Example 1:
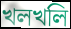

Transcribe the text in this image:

খলখলি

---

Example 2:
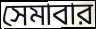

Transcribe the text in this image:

সেমাবার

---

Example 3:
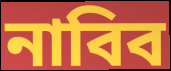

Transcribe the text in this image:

নাবিব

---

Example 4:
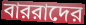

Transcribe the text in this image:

বাররাদের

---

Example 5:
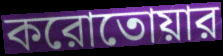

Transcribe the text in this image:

করোতোয়ার